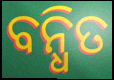
ବନ୍ଧିତ